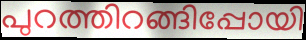
പുറത്തിറങ്ങിപ്പോയി